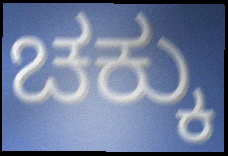
ಚಕ್ಕು